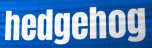
hedgehog